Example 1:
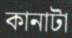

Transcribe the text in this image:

কানাটা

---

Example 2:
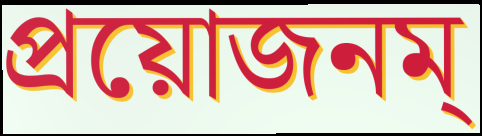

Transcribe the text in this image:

প্রয়োজনম্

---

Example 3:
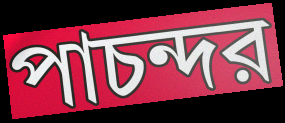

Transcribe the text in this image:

পাচন্দর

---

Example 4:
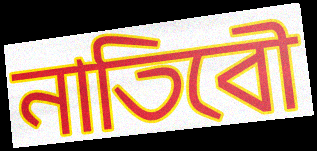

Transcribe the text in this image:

নাতিবৌ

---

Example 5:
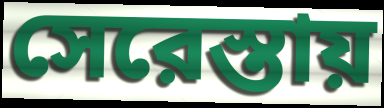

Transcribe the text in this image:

সেরেস্তায়